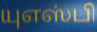
யுஎஸ்பி